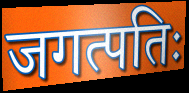
जगत्पतिः